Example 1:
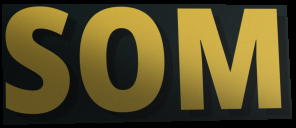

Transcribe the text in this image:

SOM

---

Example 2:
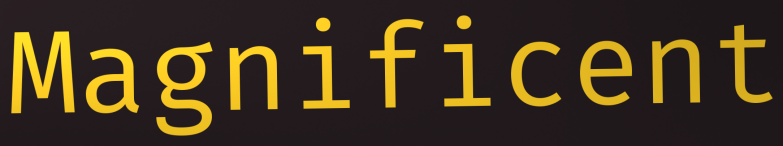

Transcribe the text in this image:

Magnificent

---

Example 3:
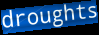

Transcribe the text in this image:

droughts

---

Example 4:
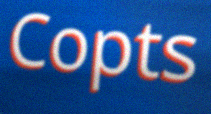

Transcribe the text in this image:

Copts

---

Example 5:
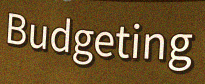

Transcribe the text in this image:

Budgeting